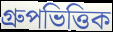
গ্রুপভিত্তিক